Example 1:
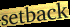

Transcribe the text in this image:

setback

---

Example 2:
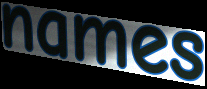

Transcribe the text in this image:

names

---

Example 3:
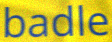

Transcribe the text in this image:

badle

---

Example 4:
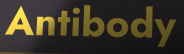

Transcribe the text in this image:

Antibody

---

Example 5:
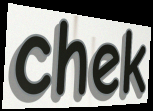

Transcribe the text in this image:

chek